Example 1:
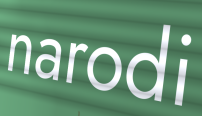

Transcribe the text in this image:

narodi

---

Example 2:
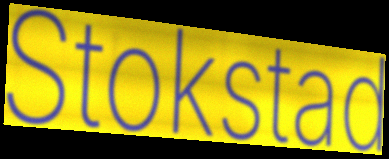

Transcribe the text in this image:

Stokstad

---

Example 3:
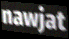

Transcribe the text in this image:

nawjat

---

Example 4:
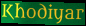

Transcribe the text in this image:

Khodiyar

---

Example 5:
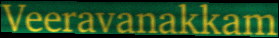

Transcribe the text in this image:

Veeravanakkam